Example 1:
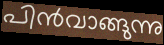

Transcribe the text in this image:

പിൻവാങ്ങുന്നു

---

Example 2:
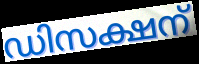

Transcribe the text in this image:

ഡിസക്ഷന്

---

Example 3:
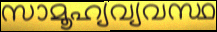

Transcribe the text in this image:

സാമൂഹ്യവ്യവസ്ഥ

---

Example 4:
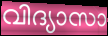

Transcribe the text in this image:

വിദ്യാസാ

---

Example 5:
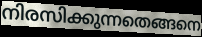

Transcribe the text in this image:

നിരസിക്കുന്നതെങ്ങനെ